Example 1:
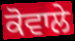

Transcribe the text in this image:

ਕੋਵਾਲੇ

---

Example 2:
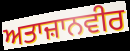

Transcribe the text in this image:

ਅਤਾਜ਼ਾਨਵੀਰ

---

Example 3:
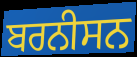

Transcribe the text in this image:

ਬਰਨੀਸਨ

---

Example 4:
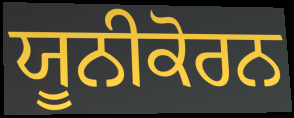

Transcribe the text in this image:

ਯੂਨੀਕੋਰਨ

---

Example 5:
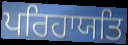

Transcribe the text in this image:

ਪਰਿਹਾਯਤਿ